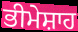
ਭੀਮੇਸ਼ਾਹ